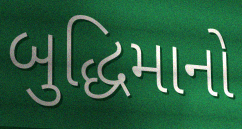
બુદ્ધિમાનો